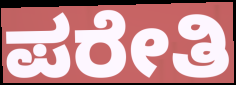
ಪರೇತಿ